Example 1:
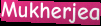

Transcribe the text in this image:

Mukherjea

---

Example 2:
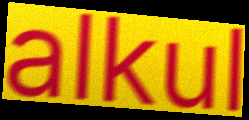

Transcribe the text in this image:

alkul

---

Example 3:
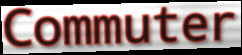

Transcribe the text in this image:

Commuter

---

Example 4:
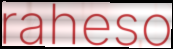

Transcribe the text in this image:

raheso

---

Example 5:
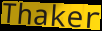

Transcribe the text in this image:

Thaker